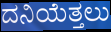
ದನಿಯೆತ್ತಲು